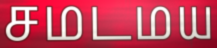
சமடமய